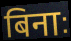
बिनाः